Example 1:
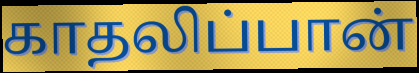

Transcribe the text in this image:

காதலிப்பான்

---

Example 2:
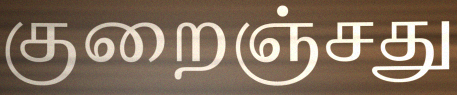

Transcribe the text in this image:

குறைஞ்சது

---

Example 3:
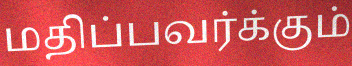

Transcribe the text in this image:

மதிப்பவர்க்கும்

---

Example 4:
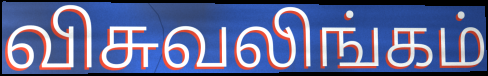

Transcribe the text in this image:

விசுவலிங்கம்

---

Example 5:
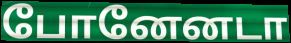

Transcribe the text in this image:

போனேனடா